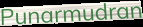
Punarmudran